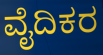
ವೈದಿಕರ